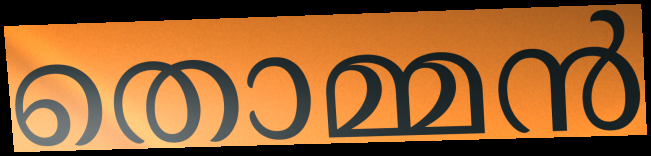
തൊമ്മൻ